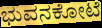
ಭುವನಕೋಟೆ